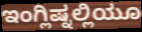
ಇಂಗ್ಲಿಷ್ನಲ್ಲಿಯೂ